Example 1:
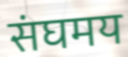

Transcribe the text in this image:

संघमय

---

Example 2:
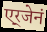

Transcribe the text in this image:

एर्जेनं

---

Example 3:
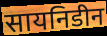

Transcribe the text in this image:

सायनिडीन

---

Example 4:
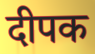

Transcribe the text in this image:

दीपक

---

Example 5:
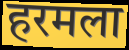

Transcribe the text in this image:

हरमला